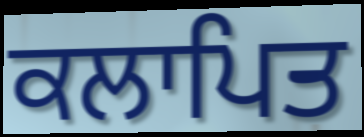
ਕਲਾਪਿਤ